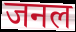
जनल